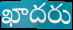
ఖాదరు